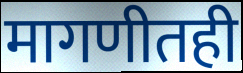
मागणीतही